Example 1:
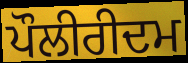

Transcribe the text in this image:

ਪੌਲੀਰੀਦਮ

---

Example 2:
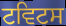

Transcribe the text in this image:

ਟਵਿਟਸ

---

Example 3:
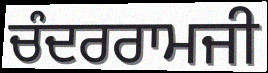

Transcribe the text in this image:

ਚੰਦਰਰਾਮਜੀ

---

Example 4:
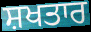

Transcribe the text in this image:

ਸ਼ਖਤਾਰ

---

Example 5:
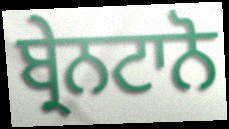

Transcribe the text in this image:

ਬ੍ਰੇਨਟਾਨੋ